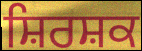
ਸ਼ਿਰਸ਼ਕ